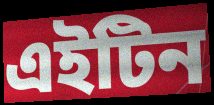
এইটিন